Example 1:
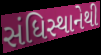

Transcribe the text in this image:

સંધિસ્થાનેથી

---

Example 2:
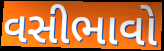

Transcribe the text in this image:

વસીભાવો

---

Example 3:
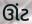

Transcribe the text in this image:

ઊંટ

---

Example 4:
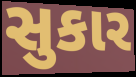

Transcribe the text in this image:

સુકાર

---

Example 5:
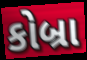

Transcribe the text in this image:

કોબ્રા